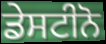
ਡੇਸਟੀਨੋ